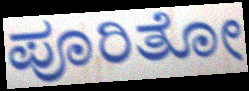
ಪೂರಿತೋ